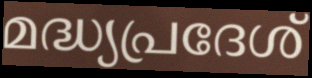
മദ്ധ്യപ്രദേശ്